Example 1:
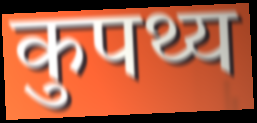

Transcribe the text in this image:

कुपथ्य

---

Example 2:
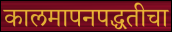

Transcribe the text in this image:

कालमापनपद्धतीचा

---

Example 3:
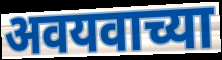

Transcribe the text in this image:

अवयवाच्या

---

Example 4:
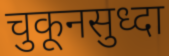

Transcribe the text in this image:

चुकूनसुध्दा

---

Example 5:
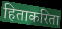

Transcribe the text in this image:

हिताकरिता